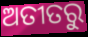
ଅତୀତରୁ